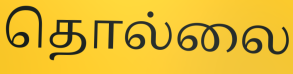
தொல்லை